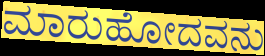
ಮಾರುಹೋದವನು